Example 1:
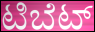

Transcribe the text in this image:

ಟಿಬೆಟ್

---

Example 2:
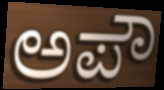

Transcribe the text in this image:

ಅಪೌ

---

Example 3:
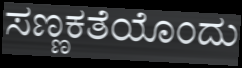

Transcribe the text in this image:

ಸಣ್ಣಕತೆಯೊಂದು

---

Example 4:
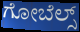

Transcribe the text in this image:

ಗೋಬೆಲ್ಸ್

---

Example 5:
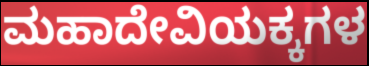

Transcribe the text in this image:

ಮಹಾದೇವಿಯಕ್ಕಗಳ